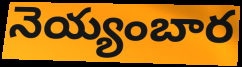
నెయ్యంబార